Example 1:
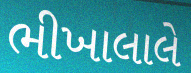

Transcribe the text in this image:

ભીખાલાલે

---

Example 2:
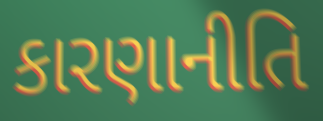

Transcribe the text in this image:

કારણાનીતિ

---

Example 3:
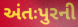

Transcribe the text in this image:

અંતઃપુરની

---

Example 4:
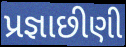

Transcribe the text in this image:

પ્રજ્ઞાછીણી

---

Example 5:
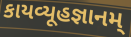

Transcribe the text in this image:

કાયવ્યૂહજ્ઞાનમ્